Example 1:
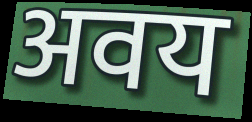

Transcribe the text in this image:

अवय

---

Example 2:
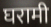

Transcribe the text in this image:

घरामी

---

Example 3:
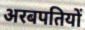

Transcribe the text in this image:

अरबपतियों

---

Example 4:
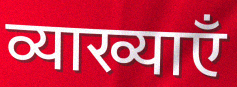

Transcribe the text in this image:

व्याख्याएँ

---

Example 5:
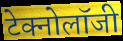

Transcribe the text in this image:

टेक्नोलॉजी